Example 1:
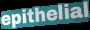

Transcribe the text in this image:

epithelial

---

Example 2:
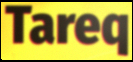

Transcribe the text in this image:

Tareq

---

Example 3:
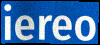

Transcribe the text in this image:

iereo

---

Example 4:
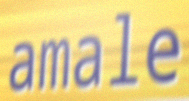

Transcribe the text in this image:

amale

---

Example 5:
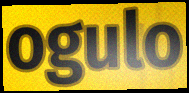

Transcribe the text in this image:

ogulo